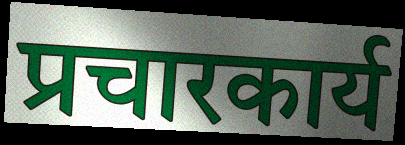
प्रचारकार्य